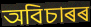
অবিচাৰৰ